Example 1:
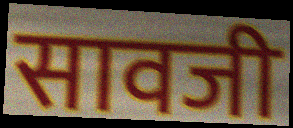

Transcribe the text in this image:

सावजी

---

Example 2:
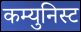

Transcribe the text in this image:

कम्युनिस्ट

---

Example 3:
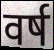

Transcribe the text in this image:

वर्ष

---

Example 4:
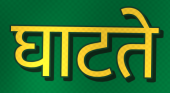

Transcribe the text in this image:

घाटते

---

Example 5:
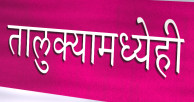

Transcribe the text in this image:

तालुक्यामध्येही